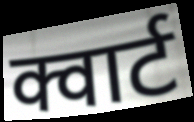
क्वार्ट